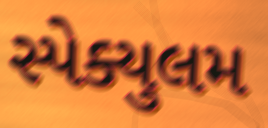
સ્પેક્યુલમ